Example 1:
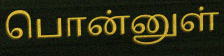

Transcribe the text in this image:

பொன்னுள்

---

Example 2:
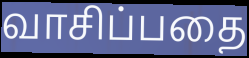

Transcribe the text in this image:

வாசிப்பதை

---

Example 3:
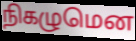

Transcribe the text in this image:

நிகழுமென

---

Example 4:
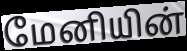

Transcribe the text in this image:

மேனியின்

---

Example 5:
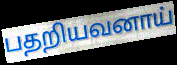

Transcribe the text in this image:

பதறியவனாய்